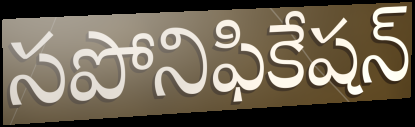
సపోనిఫికేషన్